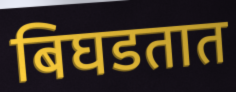
बिघडतात